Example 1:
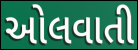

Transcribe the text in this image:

ઓલવાતી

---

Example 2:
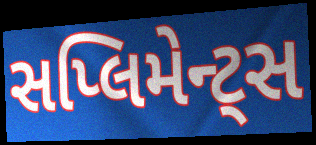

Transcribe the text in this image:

સપ્લિમેન્ટ્સ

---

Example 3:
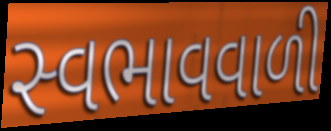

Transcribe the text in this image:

સ્વભાવવાળી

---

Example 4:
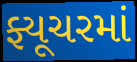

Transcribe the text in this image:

ફ્યૂચરમાં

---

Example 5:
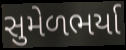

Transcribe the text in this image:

સુમેળભર્યા